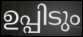
ഉപ്പിടും